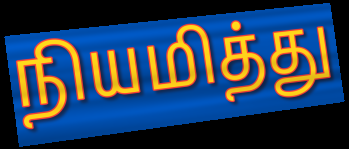
நியமித்து